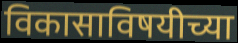
विकासाविषयीच्या